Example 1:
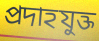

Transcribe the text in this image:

প্রদাহযুক্ত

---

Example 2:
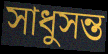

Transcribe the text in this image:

সাধুসন্ত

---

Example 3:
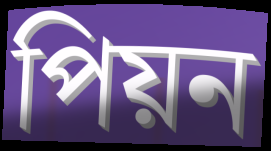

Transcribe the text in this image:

পিয়ন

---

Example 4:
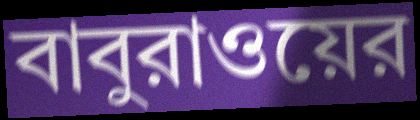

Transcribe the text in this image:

বাবুরাওয়ের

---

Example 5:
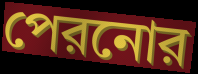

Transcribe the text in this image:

পেরনোর